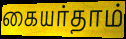
கையர்தாம்